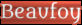
Beaufoy